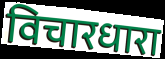
विचारधारा